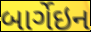
બાર્ગેઇન